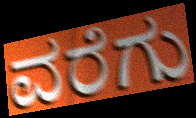
ವರೆಗು